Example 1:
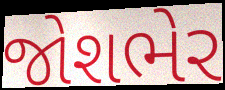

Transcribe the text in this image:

જોશભેર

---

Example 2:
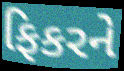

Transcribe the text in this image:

ફિકરને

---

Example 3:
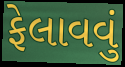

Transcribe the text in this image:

ફેલાવવું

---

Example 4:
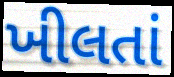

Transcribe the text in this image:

ખીલતાં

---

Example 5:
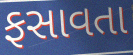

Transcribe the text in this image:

ફસાવતા